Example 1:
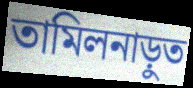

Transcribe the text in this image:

তামিলনাড়ুত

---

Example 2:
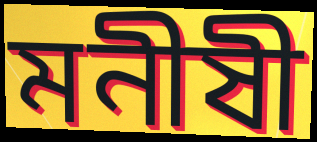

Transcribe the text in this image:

মনীষী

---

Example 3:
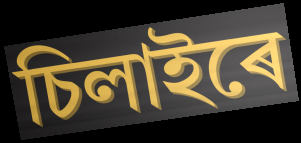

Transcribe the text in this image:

চিলাইৰে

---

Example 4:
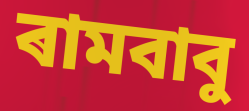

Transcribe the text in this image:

ৰামবাবু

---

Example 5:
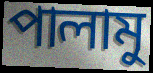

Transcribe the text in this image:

পালামু